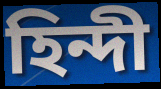
হিন্দী